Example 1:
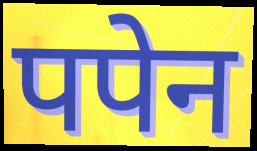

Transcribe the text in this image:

पपेन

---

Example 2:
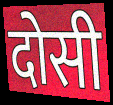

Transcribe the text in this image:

दोसी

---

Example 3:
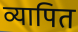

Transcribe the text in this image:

व्यापित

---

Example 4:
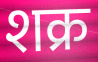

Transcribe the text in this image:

शक्र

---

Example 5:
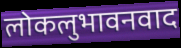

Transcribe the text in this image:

लोकलुभावनवाद